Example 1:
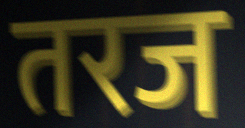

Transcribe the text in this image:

तरज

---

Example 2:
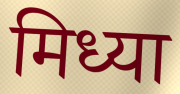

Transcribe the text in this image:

मिध्या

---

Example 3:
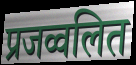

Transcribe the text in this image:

प्रजव्वलित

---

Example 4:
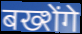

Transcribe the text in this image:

बख्शेंगे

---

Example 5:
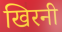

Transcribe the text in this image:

खिरनी